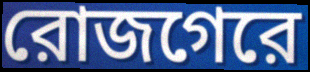
রোজগেরে